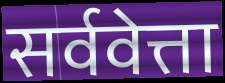
सर्ववेत्ता